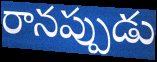
రానప్పుడు